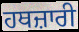
ਹਥਜ਼ਾਰੀ